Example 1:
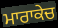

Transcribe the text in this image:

ਮਾਰਾਕੇਚ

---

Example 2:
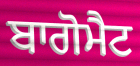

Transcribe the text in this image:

ਬਾਗੋਮੈਟ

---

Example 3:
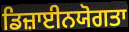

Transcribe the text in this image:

ਡਿਜ਼ਾਈਨਯੋਗਤਾ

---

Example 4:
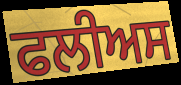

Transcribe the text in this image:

ਫਲੀਅਸ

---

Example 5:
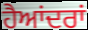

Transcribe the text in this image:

ਹੈਆਂਦਰਾਂ